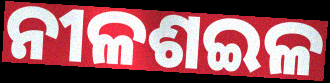
ନୀଳଶଇଳ